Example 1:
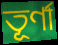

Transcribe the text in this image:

তূর্ণা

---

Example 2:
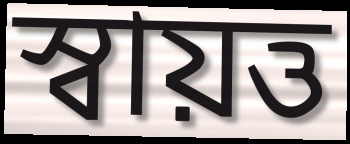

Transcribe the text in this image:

স্বায়ত্ত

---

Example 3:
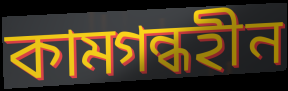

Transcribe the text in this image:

কামগন্ধহীন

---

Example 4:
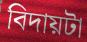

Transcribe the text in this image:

বিদায়টা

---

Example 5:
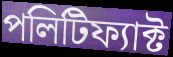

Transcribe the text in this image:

পলিটিফ্যাক্ট